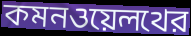
কমনওয়েলথের